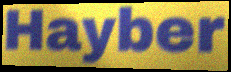
Hayber